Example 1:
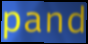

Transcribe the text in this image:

pand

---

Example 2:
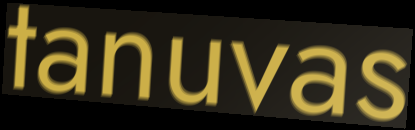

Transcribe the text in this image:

tanuvas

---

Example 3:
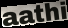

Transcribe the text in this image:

aathi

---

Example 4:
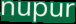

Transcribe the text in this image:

nupur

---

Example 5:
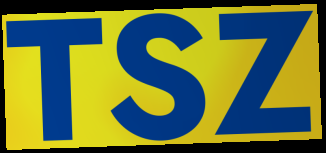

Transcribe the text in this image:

TSZ